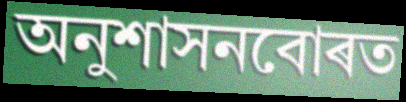
অনুশাসনবোৰত